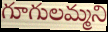
గూగులమ్మని